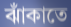
ঝাঁকাতে